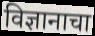
विज्ञानाचा